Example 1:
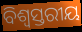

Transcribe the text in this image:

ବିଶ୍ଵସ୍ତରୀୟ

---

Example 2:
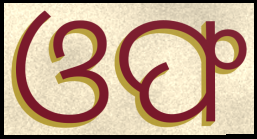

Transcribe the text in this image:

ଓଫ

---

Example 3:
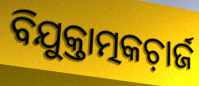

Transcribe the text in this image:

ବିଯୁକ୍ତାତ୍ମକଚ଼ାର୍ଜ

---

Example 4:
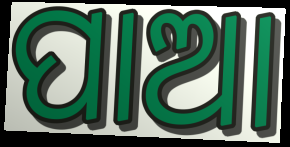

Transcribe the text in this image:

ପାଆ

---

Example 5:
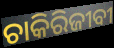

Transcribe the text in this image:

ଚାକିରିଜୀବୀ